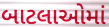
બાટલાઓમાં